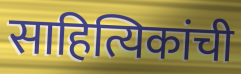
साहित्यिकांची